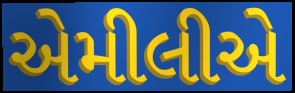
એમીલીએ